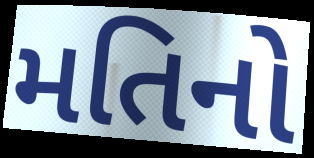
મતિનો